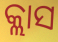
କ୍ଲାସ